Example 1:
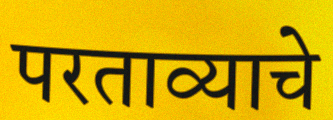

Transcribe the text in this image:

परताव्याचे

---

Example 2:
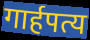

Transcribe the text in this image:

गार्हपत्य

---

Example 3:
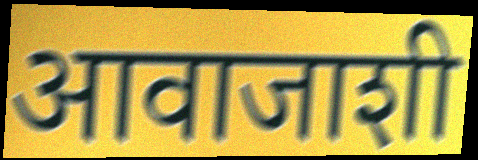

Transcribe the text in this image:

आवाजाशी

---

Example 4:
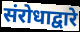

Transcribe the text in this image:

संरोधाद्वारे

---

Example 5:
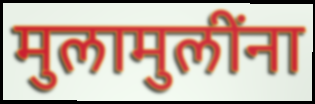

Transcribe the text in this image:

मुलामुलींना